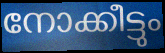
നോക്കീട്ടും